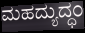
ಮಹದ್ಯುದ್ಧಂ